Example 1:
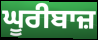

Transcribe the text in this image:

ਘੂਰੀਬਾਜ਼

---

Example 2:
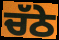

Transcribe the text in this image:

ਚੱਠੇ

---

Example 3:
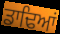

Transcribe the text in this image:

ਡਾਢਿਆਂ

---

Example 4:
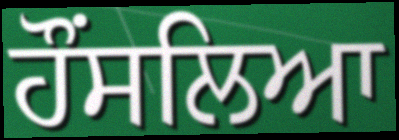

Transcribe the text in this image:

ਹੌਂਸਲਿਆ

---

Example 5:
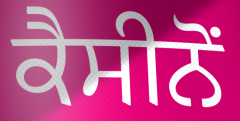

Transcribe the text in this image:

ਕੈਸੀਨੋਂ